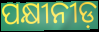
ପକ୍ଷୀନୀଡ଼